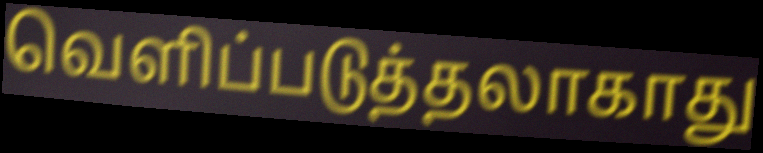
வெளிப்படுத்தலாகாது